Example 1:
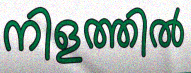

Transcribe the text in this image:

നിളത്തിൽ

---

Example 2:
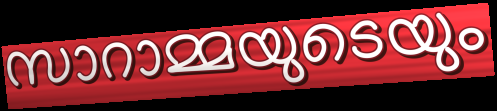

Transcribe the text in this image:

സാറാമ്മയുടെയും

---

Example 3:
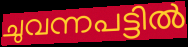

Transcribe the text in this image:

ചുവന്നപട്ടിൽ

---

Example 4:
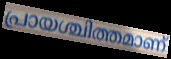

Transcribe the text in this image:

പ്രായശ്ചിത്തമാണ്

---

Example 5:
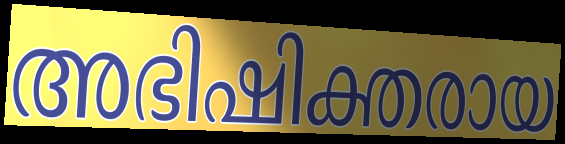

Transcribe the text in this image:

അഭിഷിക്തരായ